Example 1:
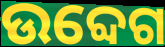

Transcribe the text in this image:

ଉବ୍ଦେଗ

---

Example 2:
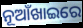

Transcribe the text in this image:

ନୂଆଁଖାଇରେ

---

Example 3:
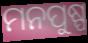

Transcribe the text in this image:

ମନପୁଷ୍ପ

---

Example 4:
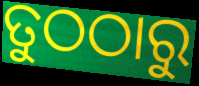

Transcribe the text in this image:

ତୁଠଠାରୁ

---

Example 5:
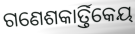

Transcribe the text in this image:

ଗଣେଶକାର୍ତ୍ତିକେୟ